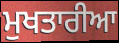
ਮੁਖਤਾਰੀਆ